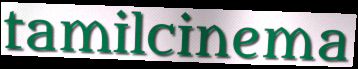
tamilcinema